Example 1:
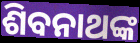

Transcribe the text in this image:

ଶିବନାଥଙ୍କ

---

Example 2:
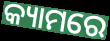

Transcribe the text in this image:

କ୍ୟାମରେ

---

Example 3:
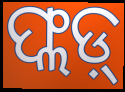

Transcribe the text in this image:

ଫ୍ଲଡ଼୍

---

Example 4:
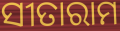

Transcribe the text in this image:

ସୀତାରାମ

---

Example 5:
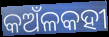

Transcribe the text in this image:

କଅଁଳକହୀ